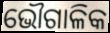
ଭୌଗାଳିକ